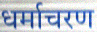
धर्माचरण